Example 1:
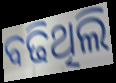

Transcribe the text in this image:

ବଢିଥିଲି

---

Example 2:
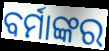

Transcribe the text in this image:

ବର୍ମାଙ୍କର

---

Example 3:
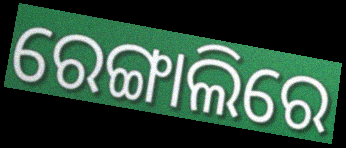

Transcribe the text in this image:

ରେଙ୍ଗାଲିରେ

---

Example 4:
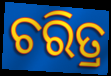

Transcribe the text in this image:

ଚରିତ୍ର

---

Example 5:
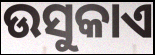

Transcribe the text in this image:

ଉସୁକାଏ